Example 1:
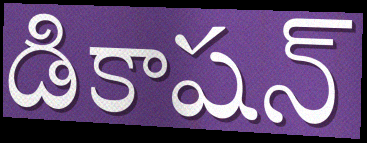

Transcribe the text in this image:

డికాషన్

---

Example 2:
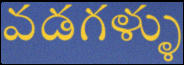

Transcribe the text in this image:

వడగళ్ళు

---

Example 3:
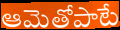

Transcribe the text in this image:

ఆమెతోపాటే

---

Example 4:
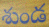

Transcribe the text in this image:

శుండ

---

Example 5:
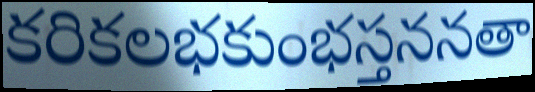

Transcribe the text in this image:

కరికలభకుంభస్తననతా